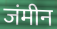
जंमीन